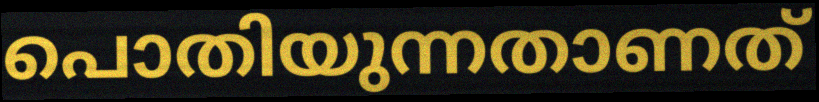
പൊതിയുന്നതാണത്